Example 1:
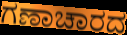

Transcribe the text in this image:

ಗಣಾಚಾರದ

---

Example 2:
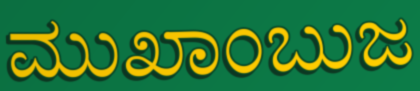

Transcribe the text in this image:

ಮುಖಾಂಬುಜ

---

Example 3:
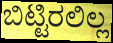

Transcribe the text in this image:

ಬಿಟ್ಟಿರಲಿಲ್ಲ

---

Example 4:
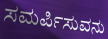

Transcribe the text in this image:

ಸಮರ್ಪಿಸುವನು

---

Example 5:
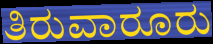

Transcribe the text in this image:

ತಿರುವಾರೂರು